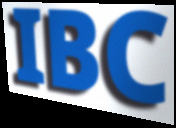
IBC